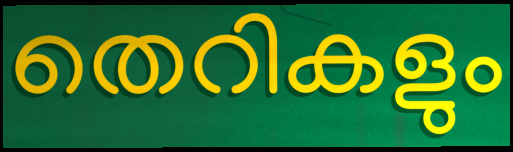
തെറികളും